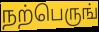
நற்பெருங்